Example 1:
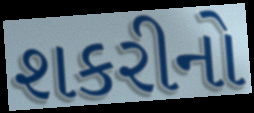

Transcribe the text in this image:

શકરીનો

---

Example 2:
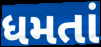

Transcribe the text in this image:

ધમતાં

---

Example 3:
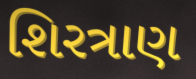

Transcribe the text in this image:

શિરત્રાણ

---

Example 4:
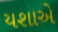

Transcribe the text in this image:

યશાએ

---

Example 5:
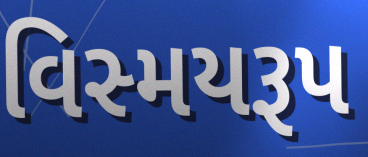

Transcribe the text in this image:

વિસ્મયરૂપ